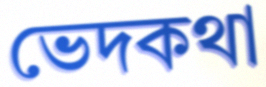
ভেদকথা